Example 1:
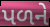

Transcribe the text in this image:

પળને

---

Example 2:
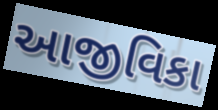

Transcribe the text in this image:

આજીવિકા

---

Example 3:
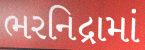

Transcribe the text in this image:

ભરનિદ્રામાં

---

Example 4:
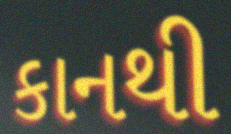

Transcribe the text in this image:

કાનથી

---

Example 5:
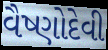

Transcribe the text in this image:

વૈષ્ણોદેવી